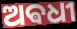
ଅଵଧୀ